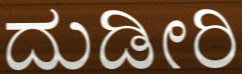
ದುಡೀರಿ